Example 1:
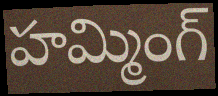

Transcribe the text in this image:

హమ్మింగ్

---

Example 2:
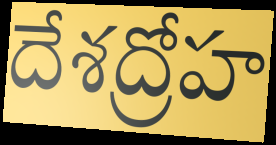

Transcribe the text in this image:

దేశద్రోహ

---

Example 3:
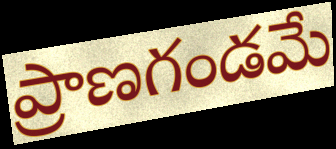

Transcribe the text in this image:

ప్రాణగండమే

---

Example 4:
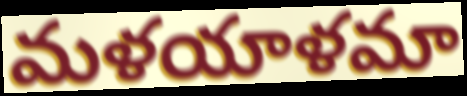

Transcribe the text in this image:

మళయాళమా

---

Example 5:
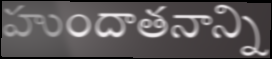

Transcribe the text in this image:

హుందాతనాన్ని